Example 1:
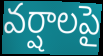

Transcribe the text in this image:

వర్షాలపై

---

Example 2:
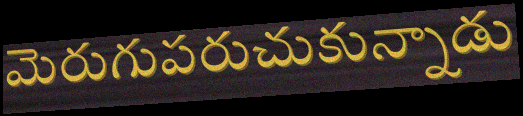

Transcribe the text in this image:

మెరుగుపరుచుకున్నాడు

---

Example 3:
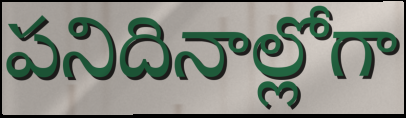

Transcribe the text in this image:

పనిదినాల్లోగా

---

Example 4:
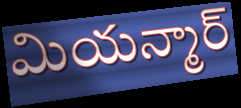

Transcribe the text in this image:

మియన్మార్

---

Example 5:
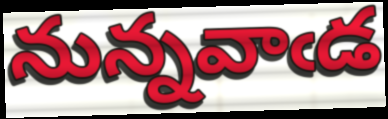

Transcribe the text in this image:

నున్నవాఁడ